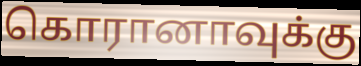
கொரானாவுக்கு